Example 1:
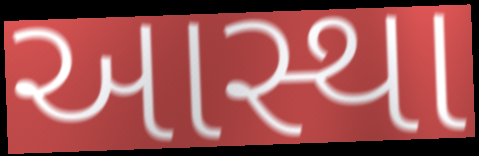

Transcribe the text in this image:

આસ્થા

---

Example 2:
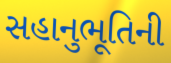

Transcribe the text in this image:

સહાનુભૂતિની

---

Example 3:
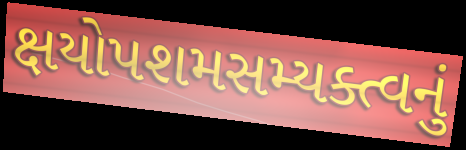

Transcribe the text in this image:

ક્ષયોપશમસમ્યક્ત્વનું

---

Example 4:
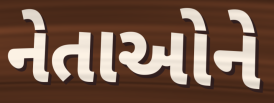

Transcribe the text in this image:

નેતાઓને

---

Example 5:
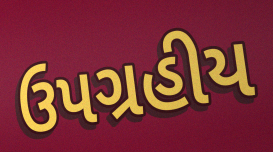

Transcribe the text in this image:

ઉપગ્રહીય